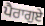
ਪੈਰਾਗੁਏ